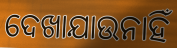
ଦେଖାଯାଉନାହିଁ